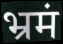
भ्रमं